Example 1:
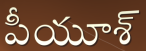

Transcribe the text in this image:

పీయూశ్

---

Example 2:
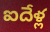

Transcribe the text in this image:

ఐదేళ్ల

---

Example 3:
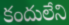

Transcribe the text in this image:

కందులేని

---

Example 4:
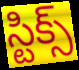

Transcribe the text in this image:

స్టిక్స్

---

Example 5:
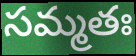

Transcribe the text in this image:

సమ్మతః